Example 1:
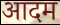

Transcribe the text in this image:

आदम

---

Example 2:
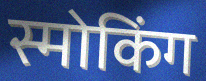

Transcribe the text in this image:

स्‍मोकिंग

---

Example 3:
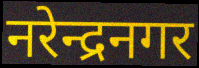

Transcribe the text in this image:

नरेन्द्रनगर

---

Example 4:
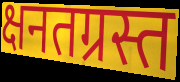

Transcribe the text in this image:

क्षनतग्रस्त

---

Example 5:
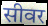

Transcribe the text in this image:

सीवर